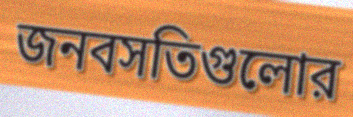
জনবসতিগুলোর